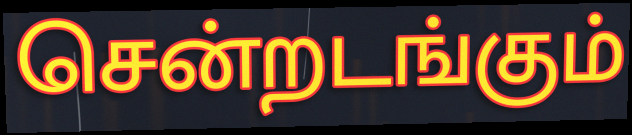
சென்றடங்கும்